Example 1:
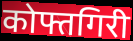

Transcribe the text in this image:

कोफ्तगिरी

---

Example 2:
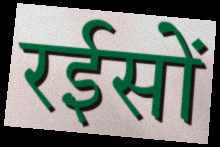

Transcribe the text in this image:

रईसों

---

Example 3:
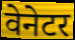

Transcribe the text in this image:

वेनेटर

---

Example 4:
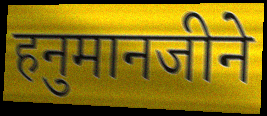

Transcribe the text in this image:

हनुमानजीने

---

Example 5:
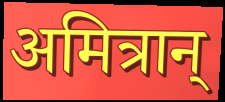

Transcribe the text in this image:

अमित्रान्